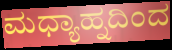
ಮಧ್ಯಾಹ್ನದಿಂದ